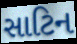
સાટિન